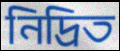
নিদ্রিত